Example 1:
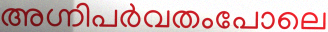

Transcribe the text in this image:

അഗ്നിപർവതംപോലെ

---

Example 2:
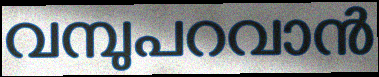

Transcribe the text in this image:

വമ്പുപറവാൻ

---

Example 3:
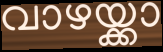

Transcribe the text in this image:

വാഴയ്ക്കാ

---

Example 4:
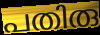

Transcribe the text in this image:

പതിരു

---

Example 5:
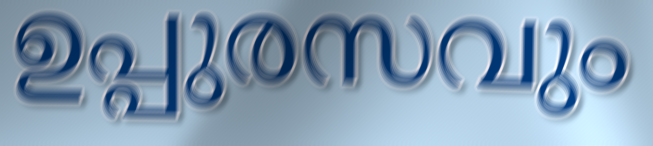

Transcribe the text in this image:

ഉപ്പുരസവും